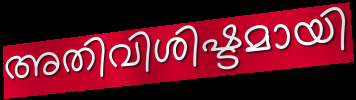
അതിവിശിഷ്ടമായി